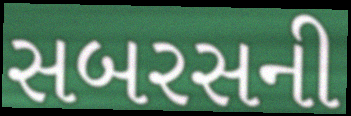
સબરસની